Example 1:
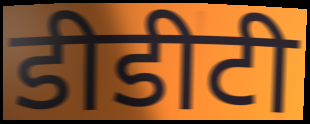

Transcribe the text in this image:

डीडीटी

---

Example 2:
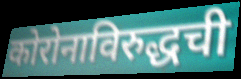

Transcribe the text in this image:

कोरोनाविरुद्धची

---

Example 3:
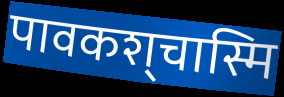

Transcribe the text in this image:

पावकश्चास्मि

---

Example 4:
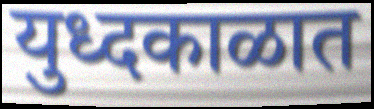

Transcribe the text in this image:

युध्दकाळात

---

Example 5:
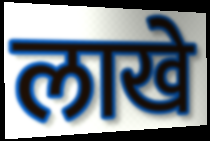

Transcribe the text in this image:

लाखे